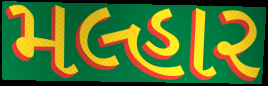
મલ્હાર